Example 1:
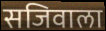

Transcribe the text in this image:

सजिवाला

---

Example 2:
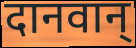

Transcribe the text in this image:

दानवान्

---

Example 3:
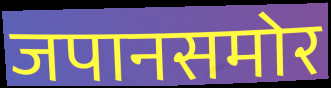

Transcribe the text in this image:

जपानसमोर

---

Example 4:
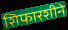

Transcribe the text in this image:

शिफारशीने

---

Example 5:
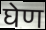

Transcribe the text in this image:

घेण